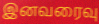
இனவரைவு